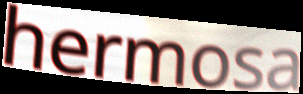
hermosa